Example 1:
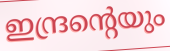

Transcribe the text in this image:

ഇന്ദ്രന്റെയും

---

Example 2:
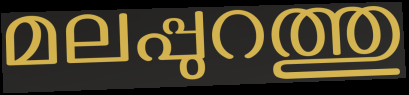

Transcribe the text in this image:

മലപ്പുറത്തു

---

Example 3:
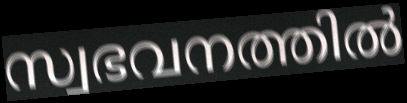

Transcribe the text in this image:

സ്വഭവനത്തിൽ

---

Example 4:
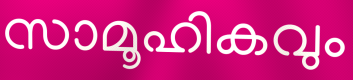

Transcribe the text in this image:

സാമൂഹികവും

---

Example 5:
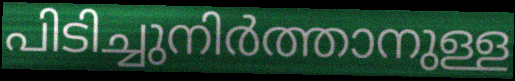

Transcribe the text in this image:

പിടിച്ചുനിർത്താനുള്ള